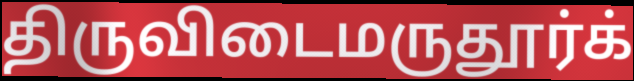
திருவிடைமருதூர்க்